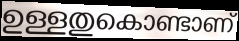
ഉള്ളതുകൊണ്ടാണ്